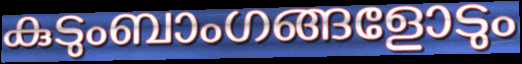
കുടുംബാംഗങ്ങളോടും